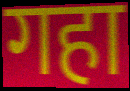
गहा